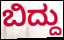
ಬಿದ್ದು